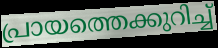
പ്രായത്തെക്കുറിച്ച്